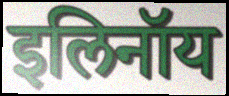
इलिनॉय